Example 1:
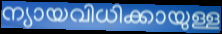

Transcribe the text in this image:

ന്യായവിധിക്കായുള്ള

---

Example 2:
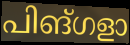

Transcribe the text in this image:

പിങ്ഗളാ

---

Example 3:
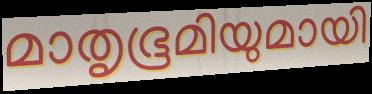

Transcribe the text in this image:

മാതൃഭൂമിയുമായി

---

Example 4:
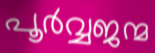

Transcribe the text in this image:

പൂർവ്വജന്മ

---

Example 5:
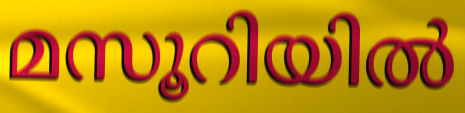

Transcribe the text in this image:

മസൂറിയിൽ